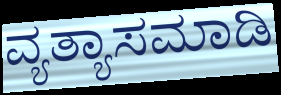
ವ್ಯತ್ಯಾಸಮಾಡಿ